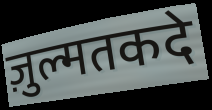
ज़ुल्मतकदे